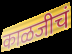
काळजीचं